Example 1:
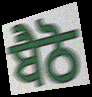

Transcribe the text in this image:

ਬੈਠੋ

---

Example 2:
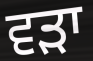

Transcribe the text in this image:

ਵੜਾ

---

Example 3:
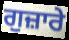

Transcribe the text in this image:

ਗੁਜ਼ਾਰੇ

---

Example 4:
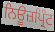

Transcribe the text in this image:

ਨਿਊਜ਼ਪ੍ਰਿੰਟ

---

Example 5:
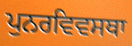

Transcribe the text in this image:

ਪੁਨਰਵਿਵਸਥਾ